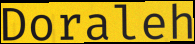
Doraleh